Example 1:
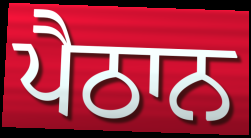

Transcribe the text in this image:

ਪੈਠਾਨ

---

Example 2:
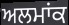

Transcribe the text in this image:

ਅਲਮਾਂਕ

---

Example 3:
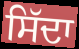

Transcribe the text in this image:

ਸਿੱਦਾ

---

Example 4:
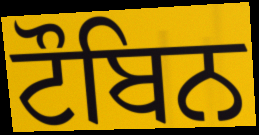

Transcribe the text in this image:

ਟੌਬਿਨ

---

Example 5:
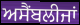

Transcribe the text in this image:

ਅਸੈਂਬਲੀਜਾਂ